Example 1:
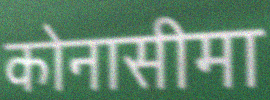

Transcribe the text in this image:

कोनासीमा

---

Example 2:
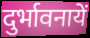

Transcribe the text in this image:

दुर्भावनायें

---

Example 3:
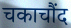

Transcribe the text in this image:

चकाचौंद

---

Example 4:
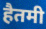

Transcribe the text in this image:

हैतमी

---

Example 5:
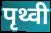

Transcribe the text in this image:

पृथ्वी